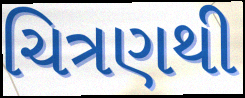
ચિત્રણથી